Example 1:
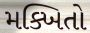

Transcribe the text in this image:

મક્ખિતો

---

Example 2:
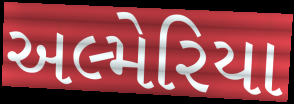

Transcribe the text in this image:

અલ્મેરિયા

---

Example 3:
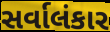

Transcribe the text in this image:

સર્વાલંકાર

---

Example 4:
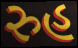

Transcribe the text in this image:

રુહ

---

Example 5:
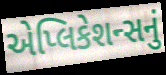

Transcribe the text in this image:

એપ્લિકેશન્સનું